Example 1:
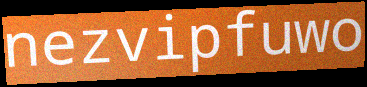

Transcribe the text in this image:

nezvipfuwo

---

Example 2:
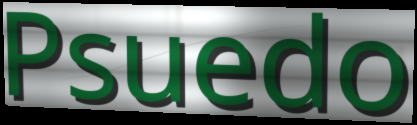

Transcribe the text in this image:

Psuedo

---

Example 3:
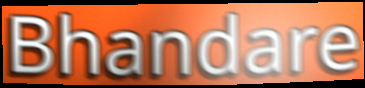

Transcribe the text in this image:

Bhandare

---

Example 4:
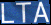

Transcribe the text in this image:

LTA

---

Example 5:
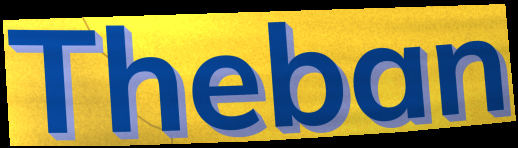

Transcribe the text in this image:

Theban